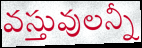
వస్తువులన్నీ